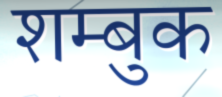
शम्बुक